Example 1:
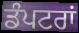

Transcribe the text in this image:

ਡੰਪਟਰਾਂ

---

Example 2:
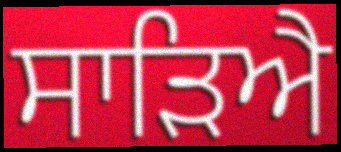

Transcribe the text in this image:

ਸਾੜਿਐ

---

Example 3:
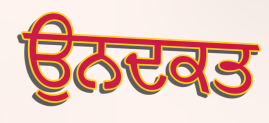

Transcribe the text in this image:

ਉਨਦਕਤ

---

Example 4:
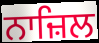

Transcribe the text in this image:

ਨਾਜ਼ਿਲ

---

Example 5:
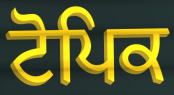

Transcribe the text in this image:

ਟੋਪਿਕ